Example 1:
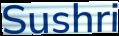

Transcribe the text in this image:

Sushri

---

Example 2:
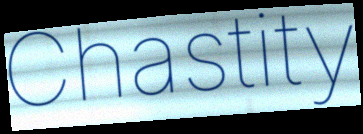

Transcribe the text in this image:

Chastity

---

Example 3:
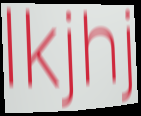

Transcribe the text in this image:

lkjhj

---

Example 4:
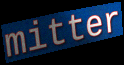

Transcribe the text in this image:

mitter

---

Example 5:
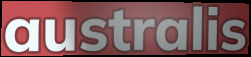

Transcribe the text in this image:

australis